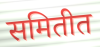
समितीत